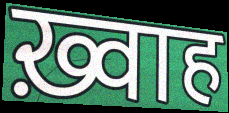
ख़्वाह